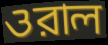
ওরাল